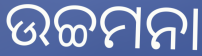
ଉଚ୍ଚମନା